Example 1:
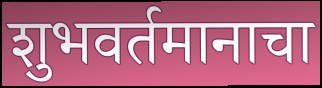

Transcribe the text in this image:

शुभवर्तमानाचा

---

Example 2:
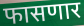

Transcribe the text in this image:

फासणार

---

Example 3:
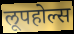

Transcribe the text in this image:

लूपहोल्स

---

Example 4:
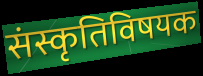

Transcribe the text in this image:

संस्कृतिविषयक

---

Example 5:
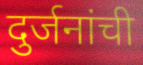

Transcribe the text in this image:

दुर्जनांची